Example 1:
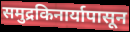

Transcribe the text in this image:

समुद्रकिनार्यापासून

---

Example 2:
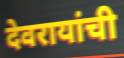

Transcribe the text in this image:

देवरायांची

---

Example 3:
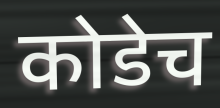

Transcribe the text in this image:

कोडेच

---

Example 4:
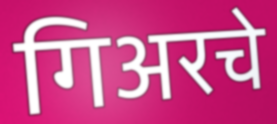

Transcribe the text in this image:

गिअरचे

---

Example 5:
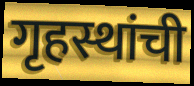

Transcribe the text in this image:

गृहस्थांची